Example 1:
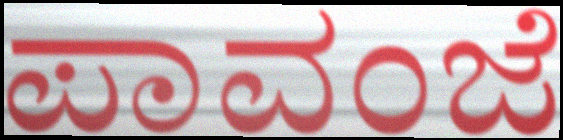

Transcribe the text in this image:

ಪಾವಂಜೆ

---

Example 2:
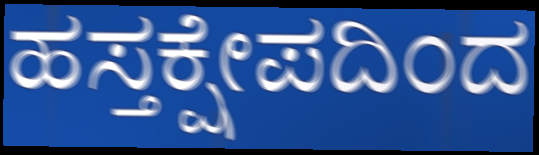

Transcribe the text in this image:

ಹಸ್ತಕ್ಷೇಪದಿಂದ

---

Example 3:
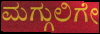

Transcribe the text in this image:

ಮಗ್ಗುಲಿಗೇ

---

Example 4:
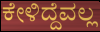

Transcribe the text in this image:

ಕೇಳಿದ್ದೆವಲ್ಲ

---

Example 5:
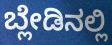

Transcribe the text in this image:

ಬ್ಲೇಡಿನಲ್ಲಿ